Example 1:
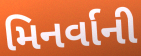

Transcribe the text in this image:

મિનર્વાની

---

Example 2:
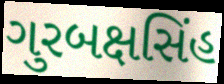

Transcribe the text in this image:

ગુરબક્ષસિંહ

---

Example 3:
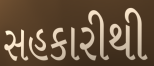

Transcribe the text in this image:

સહકારીથી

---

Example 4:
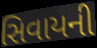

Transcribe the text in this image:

સિવાયની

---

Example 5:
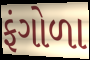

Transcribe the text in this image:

ફંગોળા